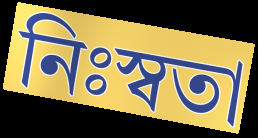
নিঃস্বতা